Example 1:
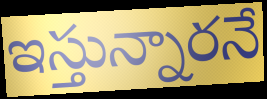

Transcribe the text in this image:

ఇస్తున్నారనే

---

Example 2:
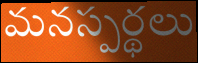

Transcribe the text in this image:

మనస్పర్థలు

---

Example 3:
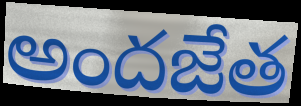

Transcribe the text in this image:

అందజేత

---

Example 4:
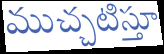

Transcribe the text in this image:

ముచ్చటిస్తూ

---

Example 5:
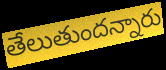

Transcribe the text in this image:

తేలుతుందన్నారు